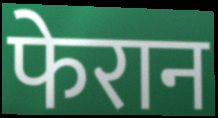
फेरान